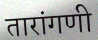
तारांगणी